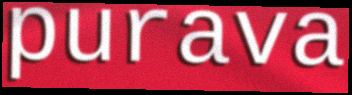
purava